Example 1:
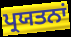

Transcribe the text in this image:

ਪ੍ਰਯਤਨਾਂ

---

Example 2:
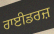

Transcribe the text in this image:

ਰਾਈਡਰਜ਼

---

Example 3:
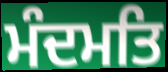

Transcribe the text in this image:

ਮੰਦਮਤਿ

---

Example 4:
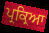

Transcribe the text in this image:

ਪ੍ਰਕ੍ਰਿਆ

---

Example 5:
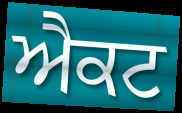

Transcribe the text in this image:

ਐਕਟ